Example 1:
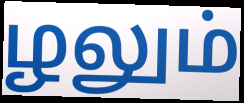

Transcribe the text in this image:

ழலும்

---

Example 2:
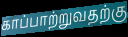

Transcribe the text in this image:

காப்பாற்றுவதற்கு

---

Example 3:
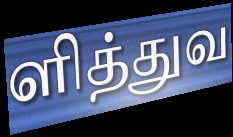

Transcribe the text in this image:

ளித்துவ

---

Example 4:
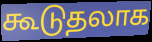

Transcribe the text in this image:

கூடுதலாக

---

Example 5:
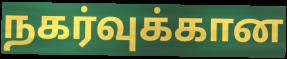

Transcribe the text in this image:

நகர்வுக்கான